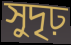
সুদৃঢ়